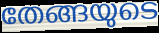
തേങ്ങയുടെ